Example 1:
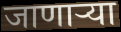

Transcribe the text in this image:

जाणार्‍या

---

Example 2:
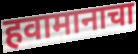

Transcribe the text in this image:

हवामानाचा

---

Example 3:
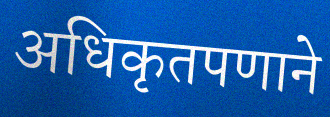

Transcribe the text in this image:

अधिकृतपणाने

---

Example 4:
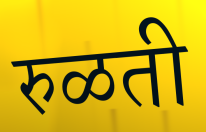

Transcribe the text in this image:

रुळती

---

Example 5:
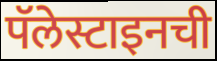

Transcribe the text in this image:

पॅलेस्टाइनची